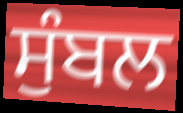
ਸੁੰਬਲ